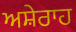
ਅਸ਼ੇਰਾਹ